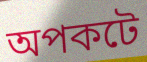
অপকটে